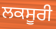
ਲਕਸੂਰੀ